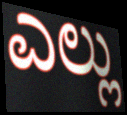
ಎಲ್ಲು